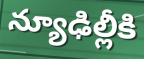
న్యూఢిల్లీకి